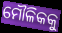
ମୌଳିକକୁ